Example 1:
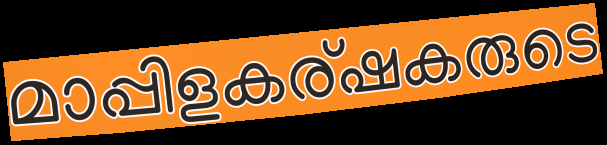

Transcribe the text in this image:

മാപ്പിളകര്ഷകരുടെ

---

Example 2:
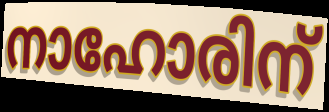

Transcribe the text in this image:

നാഹോരിന്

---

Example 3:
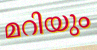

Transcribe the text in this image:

മറിയും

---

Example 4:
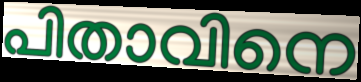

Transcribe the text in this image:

പിതാവിനെ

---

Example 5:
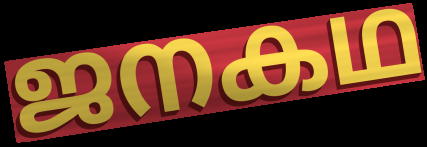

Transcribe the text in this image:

ജനകഥ